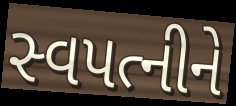
સ્વપત્નીને